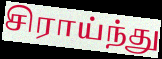
சிராய்ந்து